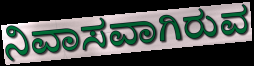
ನಿವಾಸವಾಗಿರುವ